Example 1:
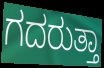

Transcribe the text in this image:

ಗದರುತ್ತಾ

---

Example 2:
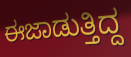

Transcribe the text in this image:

ಈಜಾಡುತ್ತಿದ್ದ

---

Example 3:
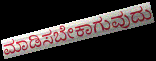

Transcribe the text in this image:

ಮಾಡಿಸಬೇಕಾಗುವುದು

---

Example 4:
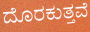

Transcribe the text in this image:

ದೊರಕುತ್ತವೆ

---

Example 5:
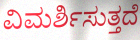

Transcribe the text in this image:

ವಿಮರ್ಶಿಸುತ್ತದೆ